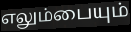
எலும்பையும்